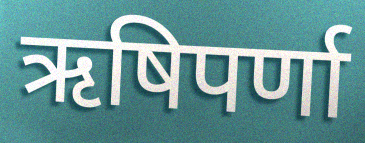
ऋषिपर्णा